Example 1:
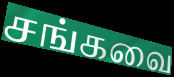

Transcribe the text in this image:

சங்கவை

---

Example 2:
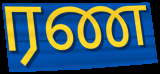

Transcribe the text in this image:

ரண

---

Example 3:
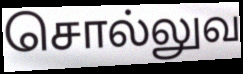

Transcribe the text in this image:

சொல்லுவ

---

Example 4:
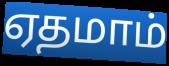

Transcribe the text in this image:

ஏதமாம்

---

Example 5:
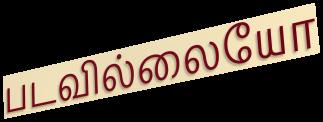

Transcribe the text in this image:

படவில்லையோ